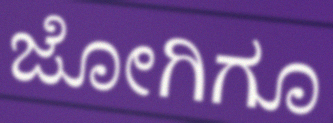
ಜೋಗಿಗೂ